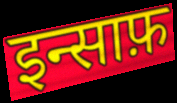
इन्साफ़